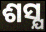
ଶସ୍ଯ